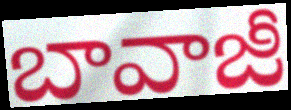
బావాజీ